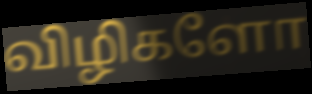
விழிகளோ